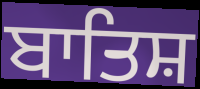
ਬਾਤਿਸ਼